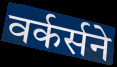
वर्कर्सने